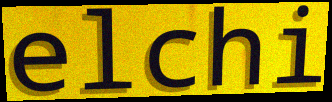
elchi